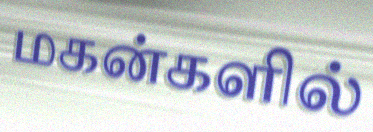
மகன்களில்